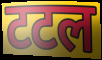
टटल